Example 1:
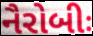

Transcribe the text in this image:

નૈરોબીઃ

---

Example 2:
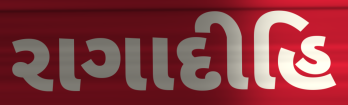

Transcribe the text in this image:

રાગાદીહિ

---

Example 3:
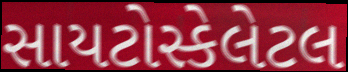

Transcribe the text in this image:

સાયટોસ્કેલેટલ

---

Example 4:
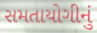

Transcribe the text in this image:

સમતાયોગીનું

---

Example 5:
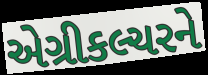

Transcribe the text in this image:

એગ્રીકલ્ચરને